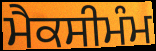
ਮੈਕਸੀਮੰਮ